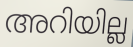
അറിയില്ല